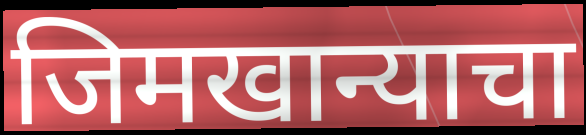
जिमखान्याचा